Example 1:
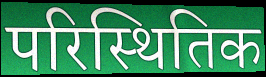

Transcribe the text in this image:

परिस्थितिक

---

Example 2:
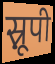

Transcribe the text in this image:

स्नूपी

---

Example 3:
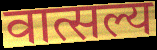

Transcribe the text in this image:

वात्सल्य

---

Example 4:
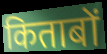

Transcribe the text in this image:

किताबों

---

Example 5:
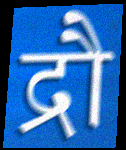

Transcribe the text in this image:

द्रौ